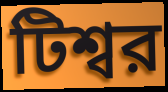
টিশ্বর